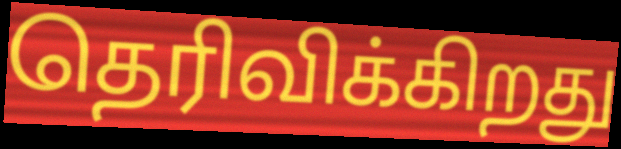
தெரிவிக்கிறது